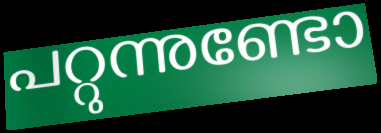
പറ്റുന്നുണ്ടോ